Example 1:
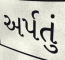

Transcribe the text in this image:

અર્પતું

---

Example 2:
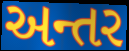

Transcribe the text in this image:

અન્તર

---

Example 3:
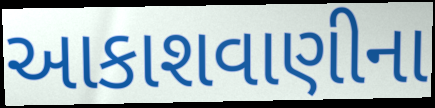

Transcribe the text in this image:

આકાશવાણીના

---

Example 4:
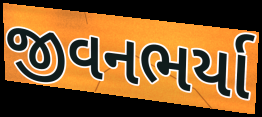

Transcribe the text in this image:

જીવનભર્યા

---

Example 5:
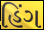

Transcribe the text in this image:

હિંગ